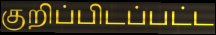
குறிப்பிடப்பட்ட